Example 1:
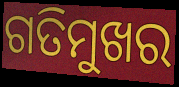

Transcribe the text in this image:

ଗତିମୁଖର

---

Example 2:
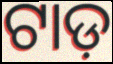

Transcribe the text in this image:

ଟାଡ଼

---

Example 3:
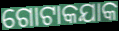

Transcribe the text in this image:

ଗୋଟାକଯାକ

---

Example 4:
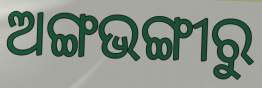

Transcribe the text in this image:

ଅଙ୍ଗଭଙ୍ଗୀରୁ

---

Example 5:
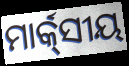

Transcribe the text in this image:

ମାର୍କ୍‍ସୀୟ